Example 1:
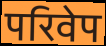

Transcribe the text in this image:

परिवेप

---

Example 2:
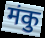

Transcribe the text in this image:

मंकु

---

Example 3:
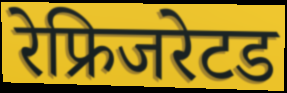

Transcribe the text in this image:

रेफ्रिजरेटड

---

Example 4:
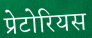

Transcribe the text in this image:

प्रेटोरियस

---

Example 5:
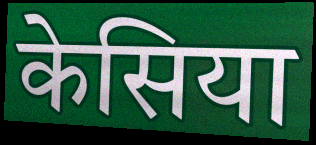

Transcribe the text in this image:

केसिया